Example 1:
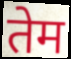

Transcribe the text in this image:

तेम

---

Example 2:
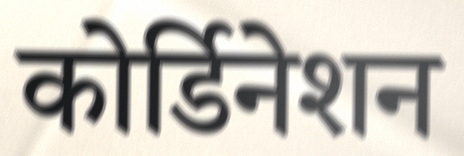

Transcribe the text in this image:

कोर्डिनेशन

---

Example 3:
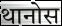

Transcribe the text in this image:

थानोस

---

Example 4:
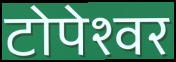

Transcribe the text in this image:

टोपेश्वर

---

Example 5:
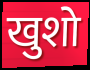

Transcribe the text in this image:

खुशो